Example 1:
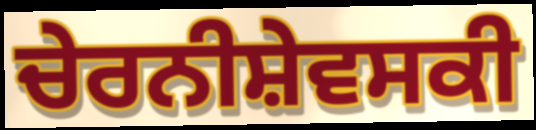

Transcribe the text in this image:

ਚੇਰਨੀਸ਼ੇਵਸਕੀ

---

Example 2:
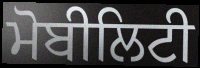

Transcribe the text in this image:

ਮੋਬੀਲਿਟੀ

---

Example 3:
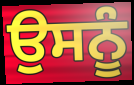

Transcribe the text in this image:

ਉਸਨੂੰ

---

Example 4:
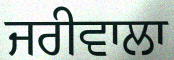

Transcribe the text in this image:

ਜਰੀਵਾਲਾ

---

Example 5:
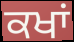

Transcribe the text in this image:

ਕਖਾਂ